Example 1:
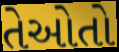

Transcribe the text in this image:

તેઓતો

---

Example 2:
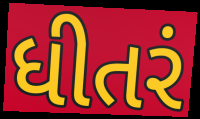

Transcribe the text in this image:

ધીતરં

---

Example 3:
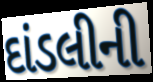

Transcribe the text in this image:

દાંડલીની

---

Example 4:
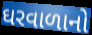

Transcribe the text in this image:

ઘરવાળાનો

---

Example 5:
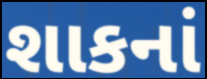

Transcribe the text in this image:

શાકનાં